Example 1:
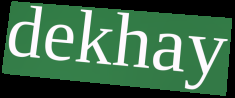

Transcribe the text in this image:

dekhay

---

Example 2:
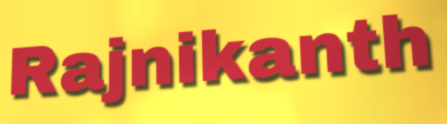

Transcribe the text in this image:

Rajnikanth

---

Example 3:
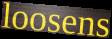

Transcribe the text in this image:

loosens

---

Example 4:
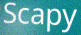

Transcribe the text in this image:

Scapy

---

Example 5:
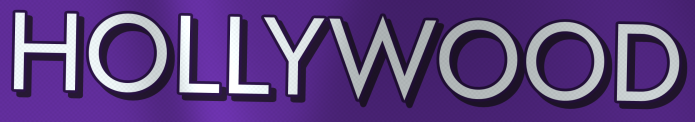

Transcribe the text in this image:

HOLLYWOOD